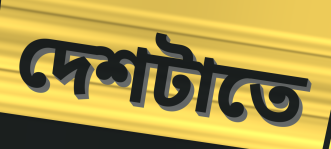
দেশটাতে